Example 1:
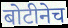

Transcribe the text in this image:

बोटीनेच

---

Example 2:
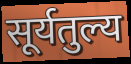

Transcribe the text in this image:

सूर्यतुल्य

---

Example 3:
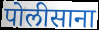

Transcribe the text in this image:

पोलीसाना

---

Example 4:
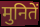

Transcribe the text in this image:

मुनितें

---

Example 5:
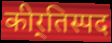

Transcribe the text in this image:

कीर्तिस्पद